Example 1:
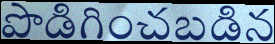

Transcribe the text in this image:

పొడిగించబడిన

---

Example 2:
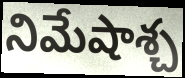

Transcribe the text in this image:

నిమేషాశ్చ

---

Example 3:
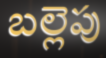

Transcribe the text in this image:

బల్లెపు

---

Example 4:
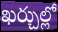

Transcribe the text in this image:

ఖర్చుల్లో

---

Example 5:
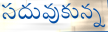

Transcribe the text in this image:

సదువుకున్న